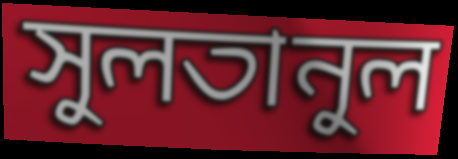
সুলতানুল